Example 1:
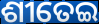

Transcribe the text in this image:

ଶୀତେଇ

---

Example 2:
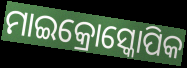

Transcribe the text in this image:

ମାଇକ୍ରୋସ୍କୋପିକ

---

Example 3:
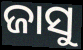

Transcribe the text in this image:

ଜାସୁ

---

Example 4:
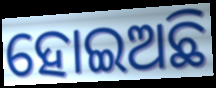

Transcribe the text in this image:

ହୋଇଅଛି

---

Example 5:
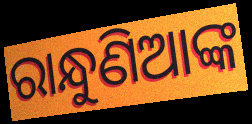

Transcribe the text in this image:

ରାନ୍ଧୁଣିଆଙ୍କ